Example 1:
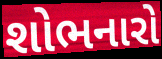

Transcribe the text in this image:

શોભનારો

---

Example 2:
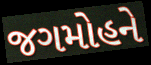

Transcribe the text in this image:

જગમોહને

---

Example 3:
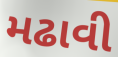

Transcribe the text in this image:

મઢાવી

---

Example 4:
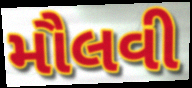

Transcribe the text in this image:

મૌલવી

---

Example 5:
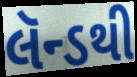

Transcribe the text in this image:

લૅન્ડથી